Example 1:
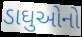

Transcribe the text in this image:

ડાઘુઓનો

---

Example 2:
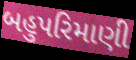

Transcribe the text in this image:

બહુપરિમાણી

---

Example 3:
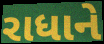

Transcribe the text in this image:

રાધાને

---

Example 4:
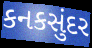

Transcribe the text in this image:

કનકસુંદર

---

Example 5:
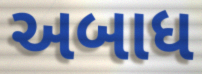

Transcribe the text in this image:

અબાધ